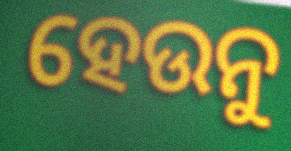
ହେଉନୁ